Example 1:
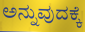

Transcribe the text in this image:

ಅನ್ನುವುದಕ್ಕೆ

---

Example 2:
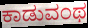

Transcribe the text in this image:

ಕಾಡುವಂಥ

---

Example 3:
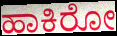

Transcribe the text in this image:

ಹಾಕಿರೋ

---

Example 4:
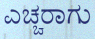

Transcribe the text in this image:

ಎಚ್ಚರಾಗು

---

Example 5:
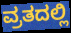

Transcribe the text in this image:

ವ್ರತದಲ್ಲಿ